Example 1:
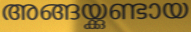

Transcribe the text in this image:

അങ്ങയ്ക്കുണ്ടായ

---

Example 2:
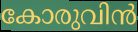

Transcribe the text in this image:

കോരുവിൻ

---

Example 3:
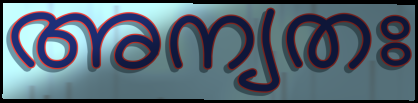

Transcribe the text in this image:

അന്യതഃ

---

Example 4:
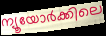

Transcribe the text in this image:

ന്യൂയോർക്കിലെ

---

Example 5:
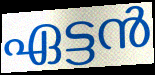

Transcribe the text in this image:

ഏട്ടൻ